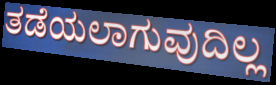
ತಡೆಯಲಾಗುವುದಿಲ್ಲ